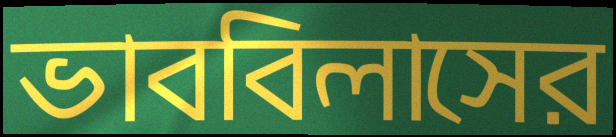
ভাববিলাসের